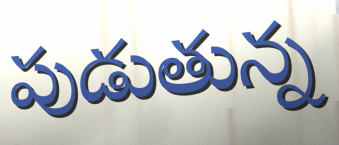
పుడుతున్న